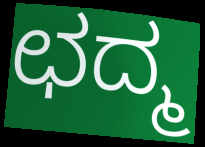
ಛದ್ಮ